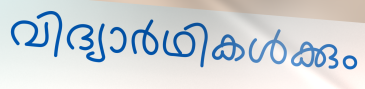
വിദ്യാർഥികൾക്കും